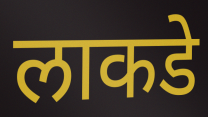
लाकडे